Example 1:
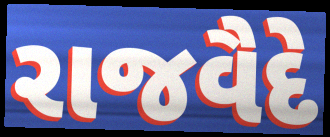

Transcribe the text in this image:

રાજવૈદે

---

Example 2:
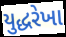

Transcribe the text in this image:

યુદ્ધરેખા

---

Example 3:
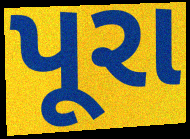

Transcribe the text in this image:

પૂરા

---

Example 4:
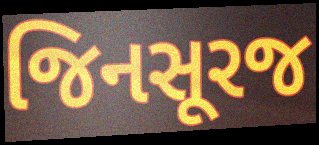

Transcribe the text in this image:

જિનસૂરજ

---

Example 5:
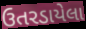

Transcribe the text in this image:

ઉતરડાયેલા